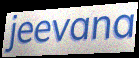
jeevana